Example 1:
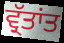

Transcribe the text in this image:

ਵ੍ਰੱਤਾਂਤ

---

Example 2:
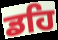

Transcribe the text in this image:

ਡਹਿ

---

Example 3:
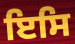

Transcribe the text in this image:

ਇਸਿ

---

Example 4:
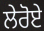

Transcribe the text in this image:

ਲੇਰੋਏ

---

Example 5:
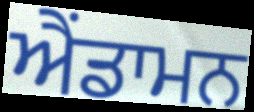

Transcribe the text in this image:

ਐਂਡਾਮਨ